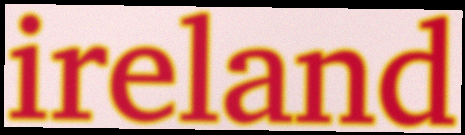
ireland